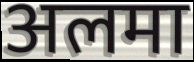
अलमा